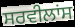
ਸਰਵੀਲਾਂਸ